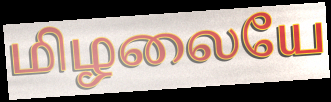
மிழலையே